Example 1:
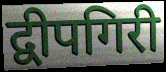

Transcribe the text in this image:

द्वीपगिरी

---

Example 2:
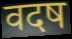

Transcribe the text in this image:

वदष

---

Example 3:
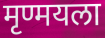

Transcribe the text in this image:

मृण्मयला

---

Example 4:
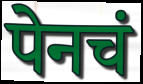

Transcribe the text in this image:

पेनचं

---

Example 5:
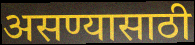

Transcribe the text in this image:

असण्यासाठी